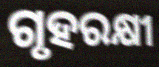
ଗୃହରକ୍ଷୀ